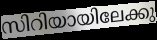
സിറിയായിലേക്കു